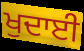
ਖੁਦਾਈ